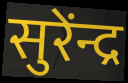
सुरेंन्द्र